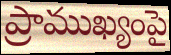
ప్రాముఖ్యంపై